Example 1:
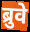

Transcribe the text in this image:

ब्रुवे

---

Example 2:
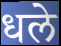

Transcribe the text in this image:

धले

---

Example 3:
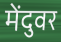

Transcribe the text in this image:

मेंदुवर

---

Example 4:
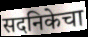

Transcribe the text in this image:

सदनिकेचा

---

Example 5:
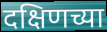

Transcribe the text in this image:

दक्षिणच्या